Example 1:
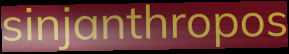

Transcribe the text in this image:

sinjanthropos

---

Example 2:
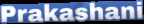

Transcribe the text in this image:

Prakashani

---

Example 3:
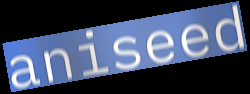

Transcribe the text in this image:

aniseed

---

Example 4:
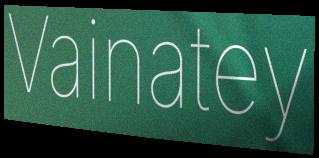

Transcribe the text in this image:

Vainatey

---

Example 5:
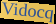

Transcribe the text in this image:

Vidocq